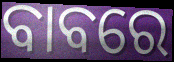
ବାବରେ